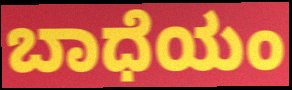
ಬಾಧೆಯಂ